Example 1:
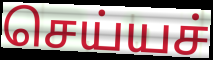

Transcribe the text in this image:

செய்யச்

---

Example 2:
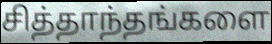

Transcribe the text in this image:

சித்தாந்தங்களை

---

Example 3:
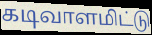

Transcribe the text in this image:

கடிவாளமிட்டு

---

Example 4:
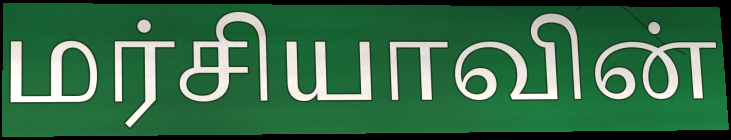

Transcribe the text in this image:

மர்சியாவின்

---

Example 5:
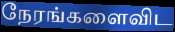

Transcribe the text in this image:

நேரங்களைவிட